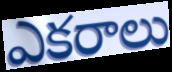
ఎకరాలు